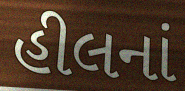
હીલનાં